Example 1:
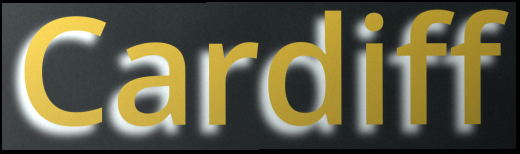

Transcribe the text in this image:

Cardiff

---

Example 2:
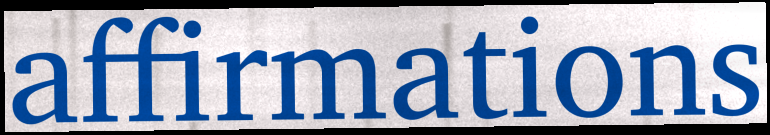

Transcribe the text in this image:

affirmations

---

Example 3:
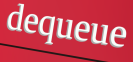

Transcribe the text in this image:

dequeue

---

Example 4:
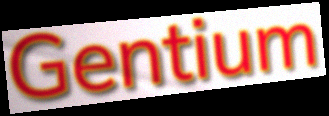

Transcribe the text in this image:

Gentium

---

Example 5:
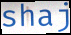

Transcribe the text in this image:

shaj